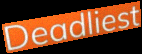
Deadliest